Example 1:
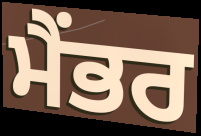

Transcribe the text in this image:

ਮੈਂਭਰ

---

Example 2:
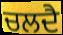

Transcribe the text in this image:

ਚਲਦੈ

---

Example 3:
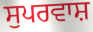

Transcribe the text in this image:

ਸੁਪਰਵਾਸ਼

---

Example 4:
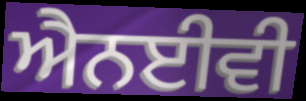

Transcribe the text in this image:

ਐਨਈਵੀ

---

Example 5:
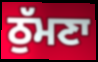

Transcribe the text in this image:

ਠੁੱਮਣਾ